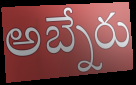
అబ్నేరు